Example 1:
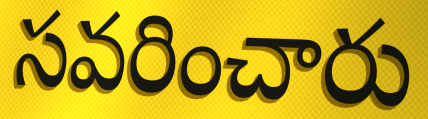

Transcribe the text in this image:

సవరించారు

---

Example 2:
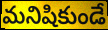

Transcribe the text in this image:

మనిషికుండే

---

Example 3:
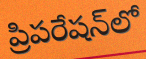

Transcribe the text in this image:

ప్రిపరేషన్‌లో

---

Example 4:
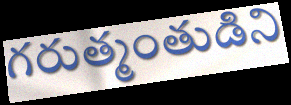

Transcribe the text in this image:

గరుత్మంతుడిని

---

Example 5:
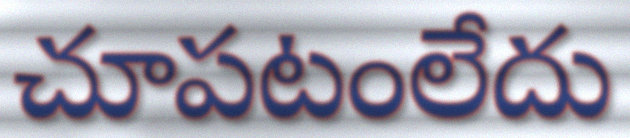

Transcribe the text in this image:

చూపటంలేదు